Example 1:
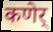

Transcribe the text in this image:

कणेर्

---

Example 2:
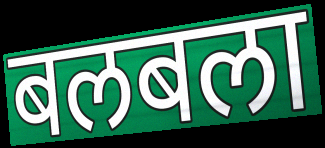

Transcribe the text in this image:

बलबला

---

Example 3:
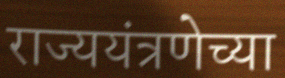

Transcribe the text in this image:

राज्ययंत्रणेच्या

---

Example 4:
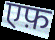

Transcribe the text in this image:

एफ़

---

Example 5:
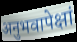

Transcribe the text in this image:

अनुभवापेक्षां